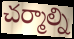
చర్మాల్ని